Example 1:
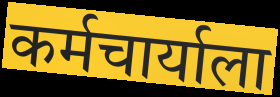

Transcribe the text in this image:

कर्मचार्याला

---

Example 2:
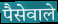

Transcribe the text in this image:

पैसेवाले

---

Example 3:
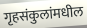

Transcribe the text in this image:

गृहसंकुलांमधील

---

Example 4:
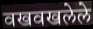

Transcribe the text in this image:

वखवखलेले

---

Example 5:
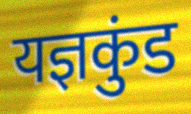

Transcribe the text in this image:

यज्ञकुंड